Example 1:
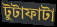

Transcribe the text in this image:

টুটাফাটা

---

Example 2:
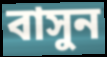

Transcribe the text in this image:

বাসুন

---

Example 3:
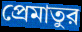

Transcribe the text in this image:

প্রেমাতুর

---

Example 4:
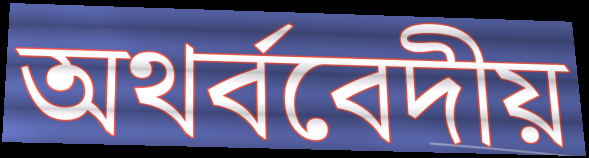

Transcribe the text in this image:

অথর্ববেদীয়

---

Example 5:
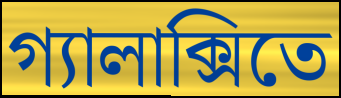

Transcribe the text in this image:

গ্যালাক্সিতে